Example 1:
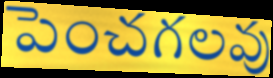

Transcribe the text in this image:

పెంచగలవు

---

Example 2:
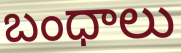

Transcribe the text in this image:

బంధాలు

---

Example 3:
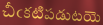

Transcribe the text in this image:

చీఁకటిపడుటయె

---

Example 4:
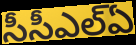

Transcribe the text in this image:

సీసీఎల్ఏ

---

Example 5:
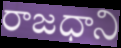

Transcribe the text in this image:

రాజధాని